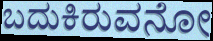
ಬದುಕಿರುವನೋ